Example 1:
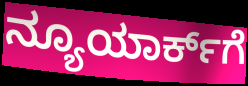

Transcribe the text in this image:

ನ್ಯೂಯಾರ್ಕ್‌ಗೆ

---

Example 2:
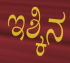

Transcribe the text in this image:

ಇಶ್ಕಿನ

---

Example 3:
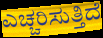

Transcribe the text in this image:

ಎಚ್ಚರಿಸುತ್ತಿದೆ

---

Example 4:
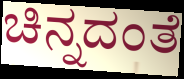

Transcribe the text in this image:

ಚಿನ್ನದಂತೆ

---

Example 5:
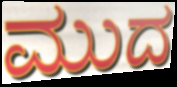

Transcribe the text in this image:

ಮುದ